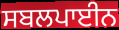
ਸਬਲਪਾਈਨ